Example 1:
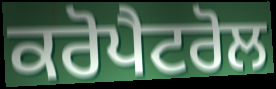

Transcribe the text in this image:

ਕਰੋਪੈਟਰੋਲ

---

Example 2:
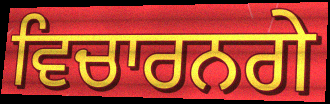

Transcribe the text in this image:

ਵਿਚਾਰਨਗੇ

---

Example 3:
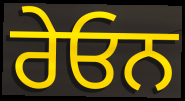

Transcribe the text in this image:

ਰੇਓਨ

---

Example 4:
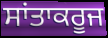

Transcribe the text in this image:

ਸਾਂਤਾਕਰੂਜ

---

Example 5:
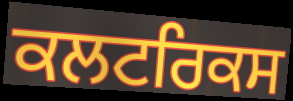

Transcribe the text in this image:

ਕਲਟਰਿਕਸ